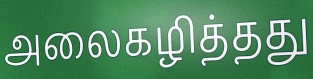
அலைகழித்தது